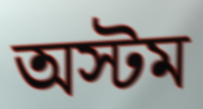
অস্টম